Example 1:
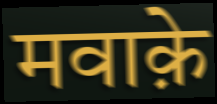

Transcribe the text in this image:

मवाक़े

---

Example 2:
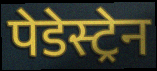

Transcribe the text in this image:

पेडेस्ट्रेन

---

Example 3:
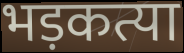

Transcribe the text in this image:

भड़कत्या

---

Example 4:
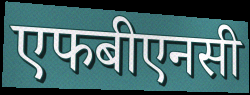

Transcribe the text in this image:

एफबीएनसी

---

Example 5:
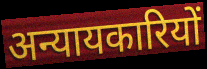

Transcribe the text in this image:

अन्यायकारियों